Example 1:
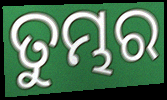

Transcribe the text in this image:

ତୁମ୍ଭର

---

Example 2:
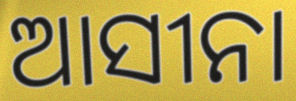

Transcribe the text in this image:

ଆସୀନା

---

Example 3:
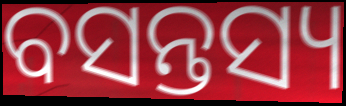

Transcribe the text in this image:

ବସନ୍ତସ୍ୟ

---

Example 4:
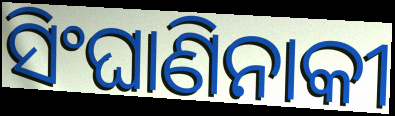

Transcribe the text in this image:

ସିଂଘାଣିନାକୀ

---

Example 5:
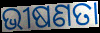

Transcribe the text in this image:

ଭୀଷଣତା